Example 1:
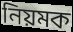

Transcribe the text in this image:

নিয়মক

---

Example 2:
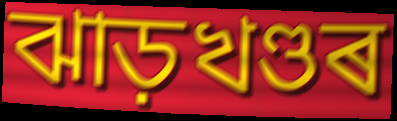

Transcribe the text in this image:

ঝাড়খণ্ডৰ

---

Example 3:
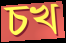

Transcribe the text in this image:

চখ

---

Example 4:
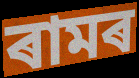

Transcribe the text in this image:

ৰামৰ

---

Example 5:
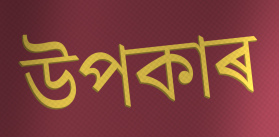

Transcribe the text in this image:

উপকাৰ